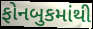
ફોનબુકમાંથી